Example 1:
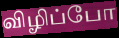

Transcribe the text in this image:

விழிப்போ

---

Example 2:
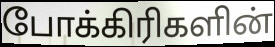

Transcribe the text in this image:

போக்கிரிகளின்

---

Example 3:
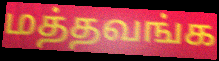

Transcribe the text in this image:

மத்தவங்க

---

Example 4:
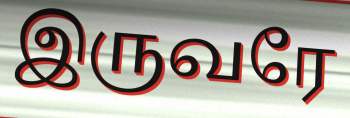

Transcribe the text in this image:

இருவரே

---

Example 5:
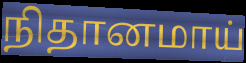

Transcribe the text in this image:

நிதானமாய்